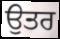
ਉਤਰ